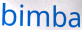
bimba